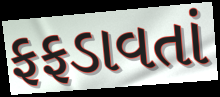
ફફડાવતાં